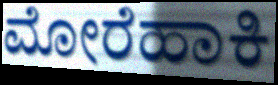
ಮೋರೆಹಾಕಿ